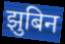
झुबिन